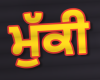
ਮੁੱਕੀ